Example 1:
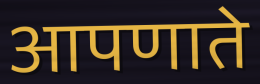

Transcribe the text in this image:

आपणाते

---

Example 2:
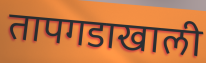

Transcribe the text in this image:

तापगडाखाली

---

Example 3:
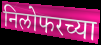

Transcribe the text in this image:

निलोफरच्या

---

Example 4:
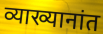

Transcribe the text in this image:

व्याख्यानांत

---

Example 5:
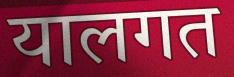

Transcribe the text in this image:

यालगत